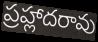
ప్రహ్లాదరావు